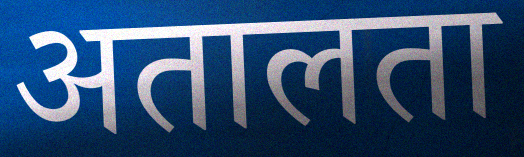
अतालता